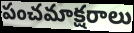
పంచమాక్షరాలు